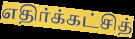
எதிர்க்கட்சித்